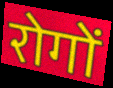
रोगों